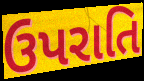
ઉપરાતિ